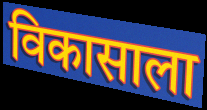
विकासाला